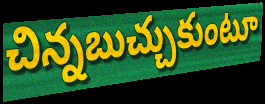
చిన్నబుచ్చుకుంటూ